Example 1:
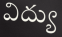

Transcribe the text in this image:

విద్యు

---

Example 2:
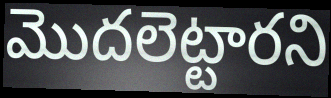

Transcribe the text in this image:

మొదలెట్టారని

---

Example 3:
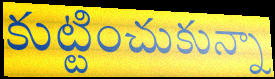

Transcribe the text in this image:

కుట్టించుకున్నా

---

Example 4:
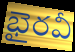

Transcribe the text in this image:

భైరవీ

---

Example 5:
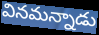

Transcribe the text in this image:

వినమన్నాడు